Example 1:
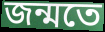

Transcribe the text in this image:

জন্মতে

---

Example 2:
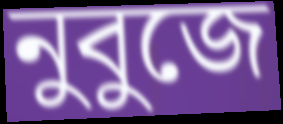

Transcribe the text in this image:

নুবুজে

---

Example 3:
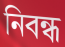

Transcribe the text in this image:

নিবন্ধ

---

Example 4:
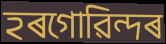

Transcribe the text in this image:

হৰগোৱিন্দৰ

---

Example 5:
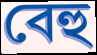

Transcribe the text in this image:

বেহু